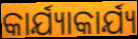
କାର୍ଯ୍ୟାକାର୍ଯ୍ୟ